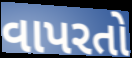
વાપરતો